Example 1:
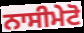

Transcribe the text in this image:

ਨਾਸੀਮੇਟੋ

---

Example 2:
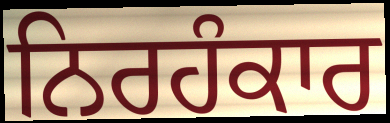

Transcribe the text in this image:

ਨਿਰਹੰਕਾਰ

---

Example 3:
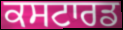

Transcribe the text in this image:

ਕਸਟਾਰਡ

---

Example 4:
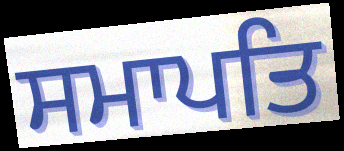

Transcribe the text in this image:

ਸਮਾਪਤਿ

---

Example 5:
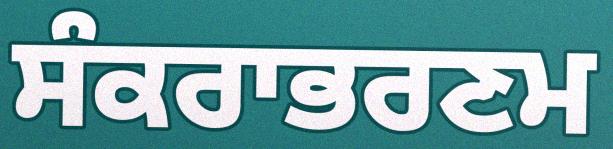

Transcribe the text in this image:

ਸੰਕਰਾਭਰਣਮ